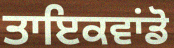
ਤਾਇਕਵਾਂਡੋ